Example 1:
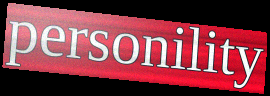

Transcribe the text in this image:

personility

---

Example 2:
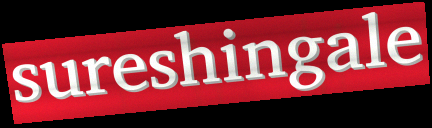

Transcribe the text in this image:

sureshingale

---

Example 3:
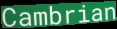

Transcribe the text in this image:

Cambrian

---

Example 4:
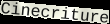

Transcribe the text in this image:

Cinecriture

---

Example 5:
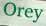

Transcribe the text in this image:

Orey